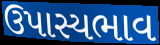
ઉપાસ્યભાવ